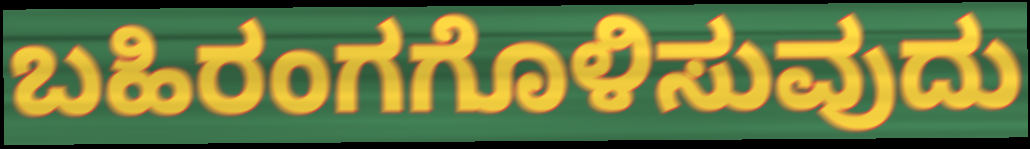
ಬಹಿರಂಗಗೊಳಿಸುವುದು